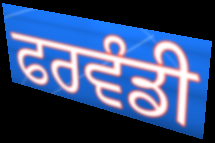
ਫਰਵੰਡੀ